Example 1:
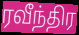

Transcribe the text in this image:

ரவீந்திர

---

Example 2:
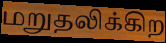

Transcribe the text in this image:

மறுதலிக்கிற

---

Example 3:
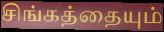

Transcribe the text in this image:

சிங்கத்தையும்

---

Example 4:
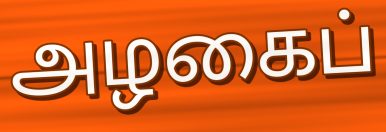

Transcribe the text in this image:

அழகைப்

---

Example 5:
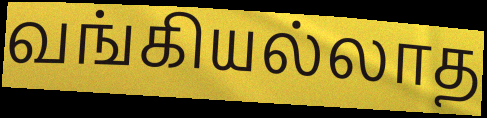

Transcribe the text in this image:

வங்கியல்லாத